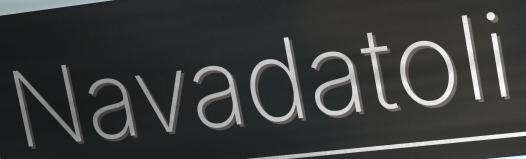
Navadatoli